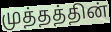
முத்தத்தின்